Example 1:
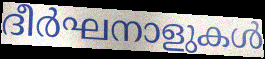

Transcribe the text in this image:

ദീർഘനാളുകൾ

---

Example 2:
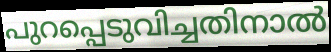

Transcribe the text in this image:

പുറപ്പെടുവിച്ചതിനാൽ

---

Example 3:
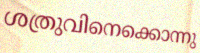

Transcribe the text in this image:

ശത്രുവിനെക്കൊന്നു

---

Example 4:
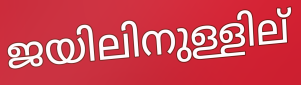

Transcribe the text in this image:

ജയിലിനുള്ളില്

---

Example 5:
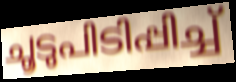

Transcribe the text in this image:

ചൂടുപിടിപ്പിച്ച്